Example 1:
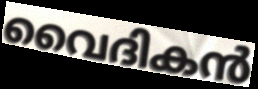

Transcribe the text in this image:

വൈദികൻ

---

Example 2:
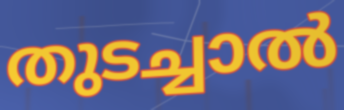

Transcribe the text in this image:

തുടച്ചാൽ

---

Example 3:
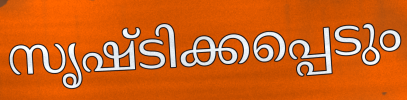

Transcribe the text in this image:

സൃഷ്ടിക്കപ്പെടും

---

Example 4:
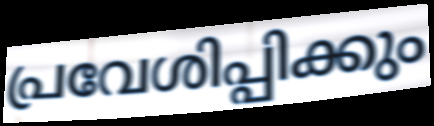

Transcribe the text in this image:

പ്രവേശിപ്പിക്കും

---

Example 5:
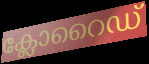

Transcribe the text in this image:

ക്ലോറൈഡ്